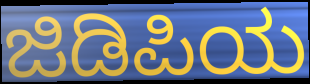
ಜಿಡಿಪಿಯ